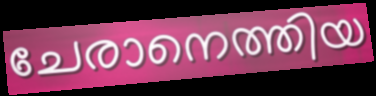
ചേരാനെത്തിയ